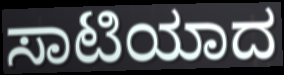
ಸಾಟಿಯಾದ